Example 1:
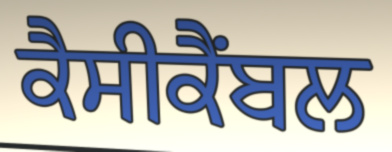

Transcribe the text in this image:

ਕੈਸੀਕੈਂਬਲ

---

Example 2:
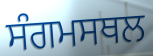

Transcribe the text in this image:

ਸੰਗਮਸਥਲ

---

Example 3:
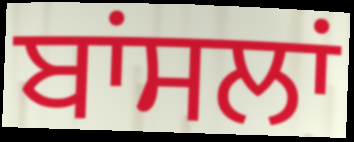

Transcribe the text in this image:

ਬਾਂਸਲਾਂ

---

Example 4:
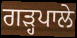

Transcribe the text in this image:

ਗੜ੍ਹਪਾਲੇ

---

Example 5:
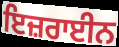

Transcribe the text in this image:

ਇਜ਼ਰਾਈਨ